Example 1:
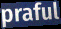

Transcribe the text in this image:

praful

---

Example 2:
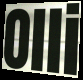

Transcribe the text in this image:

Olli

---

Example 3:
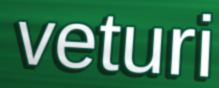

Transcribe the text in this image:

veturi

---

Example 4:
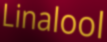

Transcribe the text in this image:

Linalool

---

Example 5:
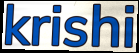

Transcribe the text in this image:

krishi